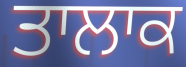
ਤਾਲਾਕ